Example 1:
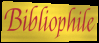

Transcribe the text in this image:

Bibliophile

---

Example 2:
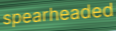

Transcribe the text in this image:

spearheaded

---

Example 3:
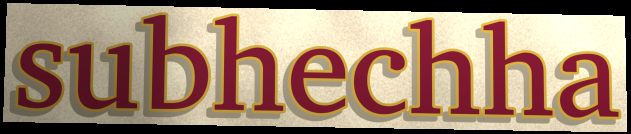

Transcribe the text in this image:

subhechha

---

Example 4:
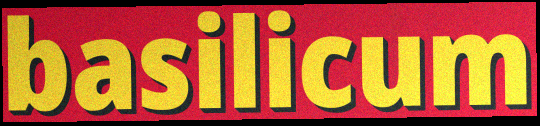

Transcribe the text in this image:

basilicum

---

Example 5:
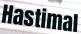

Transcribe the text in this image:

Hastimal